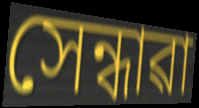
সেন্ধাৱা